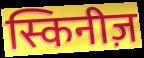
स्किनीज़